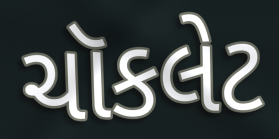
ચૉકલેટ